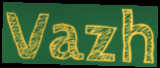
Vazh